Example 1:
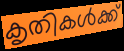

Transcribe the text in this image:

കൃതികൾക്ക്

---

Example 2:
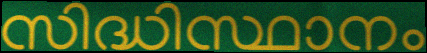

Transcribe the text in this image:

സിദ്ധിസ്ഥാനം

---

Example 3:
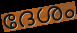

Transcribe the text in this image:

ദേശം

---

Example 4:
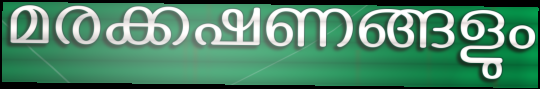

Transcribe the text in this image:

മരക്കഷണങ്ങളും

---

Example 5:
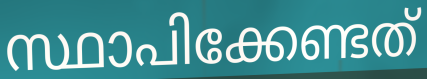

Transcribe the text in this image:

സ്ഥാപിക്കേണ്ടത്